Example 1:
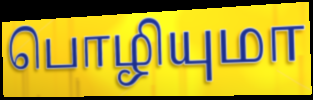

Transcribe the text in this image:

பொழியுமா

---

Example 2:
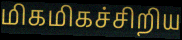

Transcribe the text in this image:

மிகமிகச்சிறிய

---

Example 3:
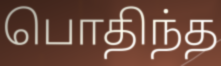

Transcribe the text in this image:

பொதிந்த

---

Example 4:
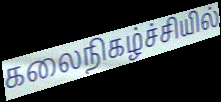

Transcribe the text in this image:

கலைநிகழ்ச்சியில்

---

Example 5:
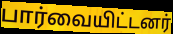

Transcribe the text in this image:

பார்வையிட்டனர்